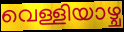
വെള്ളിയാഴ്ച